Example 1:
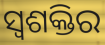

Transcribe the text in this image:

ସ୍ଵଶକ୍ତିର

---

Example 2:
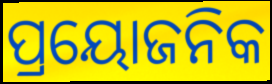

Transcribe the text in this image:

ପ୍ରୟୋଜନିକ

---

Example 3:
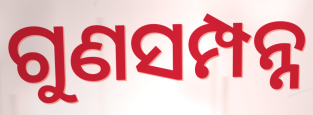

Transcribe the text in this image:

ଗୁଣସମ୍ପନ୍ନ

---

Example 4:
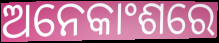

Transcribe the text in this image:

ଅନେକାଂଶରେ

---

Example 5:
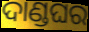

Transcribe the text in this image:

ଦାଣ୍ଡଘର